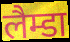
लैम्डा